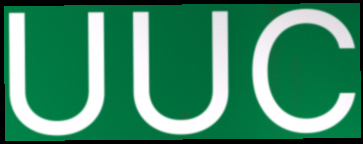
UUC